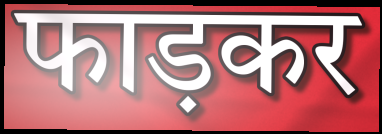
फाड़कर